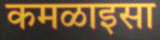
कमळाइसा